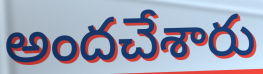
అందచేశారు